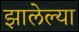
झालेल्या